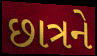
છાત્રને